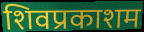
शिवप्रकाशम